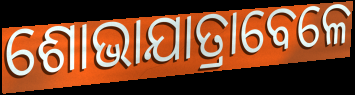
ଶୋଭାଯାତ୍ରାବେଳେ